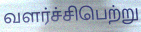
வளர்ச்சிபெற்று